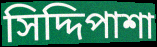
সিদ্দিপাশা